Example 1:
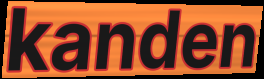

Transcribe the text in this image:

kanden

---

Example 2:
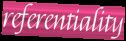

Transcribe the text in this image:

referentiality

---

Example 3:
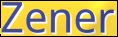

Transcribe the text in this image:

Zener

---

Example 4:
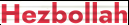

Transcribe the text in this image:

Hezbollah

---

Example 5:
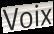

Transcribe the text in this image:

Voix